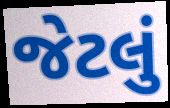
જેટલું